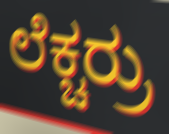
ಲೆಕ್ಚರ್ರು